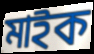
মাইক